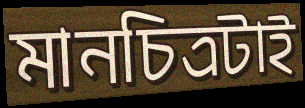
মানচিত্রটাই